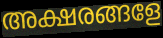
അക്ഷരങ്ങളേ